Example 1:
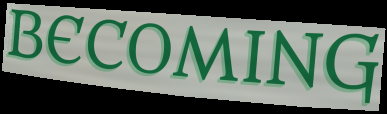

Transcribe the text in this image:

BECOMING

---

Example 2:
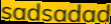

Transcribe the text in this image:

sadsadad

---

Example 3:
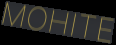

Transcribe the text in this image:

MOHITE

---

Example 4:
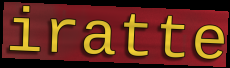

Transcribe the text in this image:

iratte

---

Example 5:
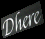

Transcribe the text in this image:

Dhere